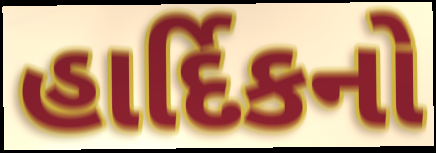
હાર્દિકનો